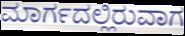
ಮಾರ್ಗದಲ್ಲಿರುವಾಗ